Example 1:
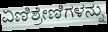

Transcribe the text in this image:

ಏಣಿಶ್ರೇಣಿಗಳನ್ನು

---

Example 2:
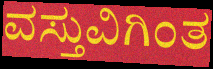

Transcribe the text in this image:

ವಸ್ತುವಿಗಿಂತ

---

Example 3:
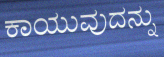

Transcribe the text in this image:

ಕಾಯುವುದನ್ನು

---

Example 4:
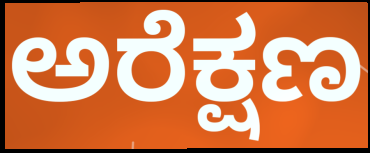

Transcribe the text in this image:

ಅರೆಕ್ಷಣ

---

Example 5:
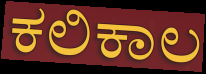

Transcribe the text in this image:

ಕಲಿಕಾಲ